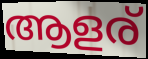
ആളര്